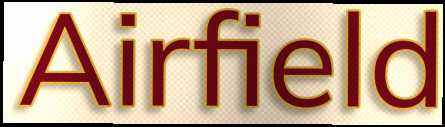
Airfield